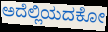
ಅದೆಲ್ಲಿಯದಕೋ